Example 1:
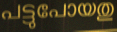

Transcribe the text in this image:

പട്ടുപോയതു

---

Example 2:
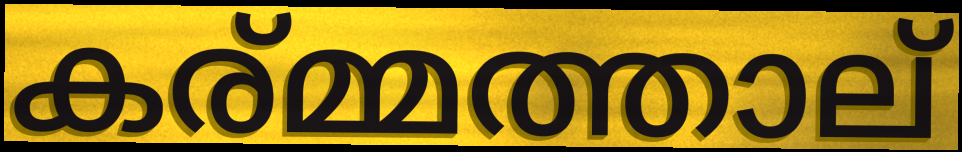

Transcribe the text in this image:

കര്മ്മത്താല്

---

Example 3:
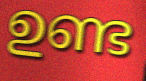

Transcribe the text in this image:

ഉണ്ട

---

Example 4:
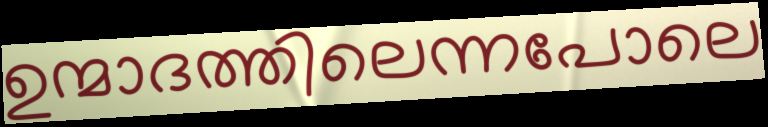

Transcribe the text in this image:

ഉന്മാദത്തിലെന്നപോലെ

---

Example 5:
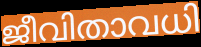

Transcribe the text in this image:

ജീവിതാവധി